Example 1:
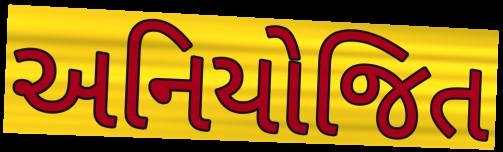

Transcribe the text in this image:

અનિયોજિત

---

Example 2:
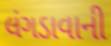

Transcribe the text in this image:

લંગડાવાની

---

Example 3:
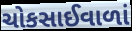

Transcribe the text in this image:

ચોકસાઈવાળાં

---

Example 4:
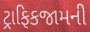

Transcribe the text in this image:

ટ્રાફિકજામની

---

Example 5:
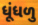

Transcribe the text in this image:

ધૂંધળુ